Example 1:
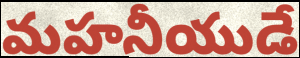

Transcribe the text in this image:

మహనీయుడే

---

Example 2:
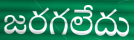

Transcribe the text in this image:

జరగలేదు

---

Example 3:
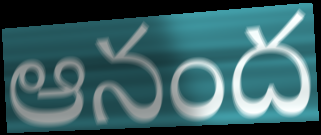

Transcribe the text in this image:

ఆనంద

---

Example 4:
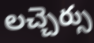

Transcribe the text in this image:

లచ్చెర్సు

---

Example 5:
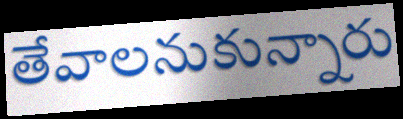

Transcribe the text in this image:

తేవాలనుకున్నారు